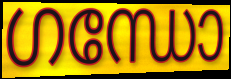
ഗന്ധോ